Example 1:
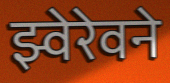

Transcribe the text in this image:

झ्वेरेवने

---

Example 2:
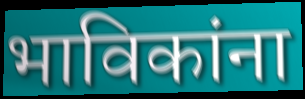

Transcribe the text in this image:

भाविकांना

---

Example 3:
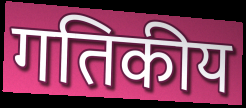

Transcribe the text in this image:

गतिकीय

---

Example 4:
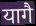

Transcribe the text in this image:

यागै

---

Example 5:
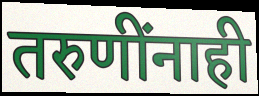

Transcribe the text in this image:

तरुणींनाही